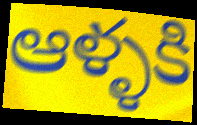
ఆళ్ళకి